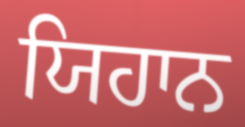
ਯਿਹਾਨ